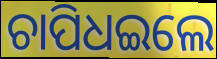
ଚାପିଧଇଲେ